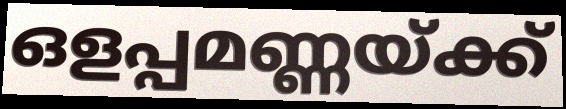
ഒളപ്പമണ്ണയ്ക്ക്